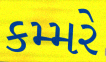
કમ્મરે